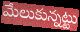
మేలుకున్నట్టు